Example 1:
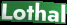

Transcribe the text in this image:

Lothal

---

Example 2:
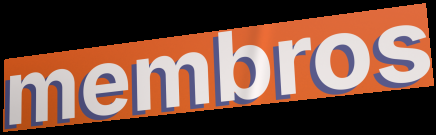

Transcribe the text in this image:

membros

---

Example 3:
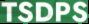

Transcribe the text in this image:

TSDPS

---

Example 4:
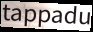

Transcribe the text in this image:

tappadu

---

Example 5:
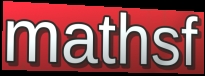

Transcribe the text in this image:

mathsf